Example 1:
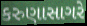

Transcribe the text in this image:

કરુણાસાગરે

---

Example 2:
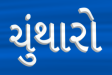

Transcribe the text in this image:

ચુંથારો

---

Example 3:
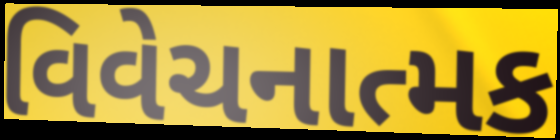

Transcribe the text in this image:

વિવેચનાત્મક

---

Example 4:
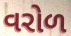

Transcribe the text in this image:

વરોળ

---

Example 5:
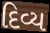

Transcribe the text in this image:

દિવ્ય